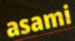
asami